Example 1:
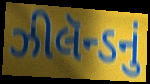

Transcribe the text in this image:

ઝીલૅન્ડનું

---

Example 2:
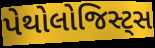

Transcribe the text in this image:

પેથોલોજિસ્ટ્સ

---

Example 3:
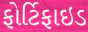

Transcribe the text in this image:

ફોર્ટિફાઇડ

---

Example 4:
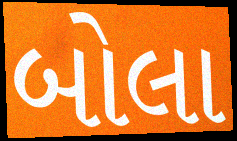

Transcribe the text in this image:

બોલા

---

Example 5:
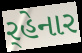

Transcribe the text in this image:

ર્‌હેનાર